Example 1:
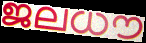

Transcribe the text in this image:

ജലധൗ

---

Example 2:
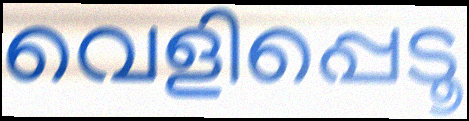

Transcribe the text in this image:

വെളിപ്പെടൂ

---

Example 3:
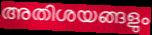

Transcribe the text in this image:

അതിശയങ്ങളും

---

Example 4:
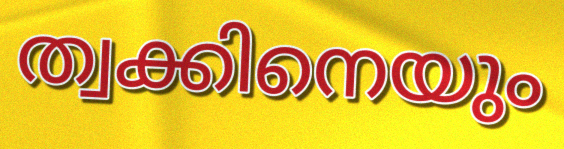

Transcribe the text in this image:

ത്വക്കിനെയും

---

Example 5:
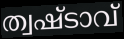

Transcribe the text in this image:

ത്വഷ്ടാവ്